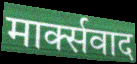
मार्क्‍सवाद